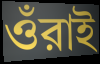
ওঁরাই